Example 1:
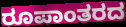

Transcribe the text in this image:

ರೂಪಾಂತರದ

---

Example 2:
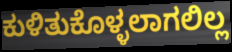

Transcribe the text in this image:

ಕುಳಿತುಕೊಳ್ಳಲಾಗಲಿಲ್ಲ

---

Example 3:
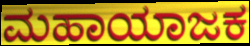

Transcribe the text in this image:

ಮಹಾಯಾಜಕ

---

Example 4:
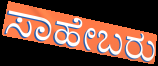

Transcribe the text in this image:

ಸಾಹೇಬರು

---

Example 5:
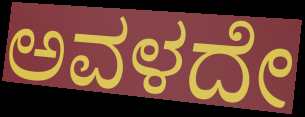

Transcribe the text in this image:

ಅವಳದೇ